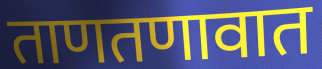
ताणतणावात